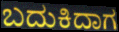
ಬದುಕಿದಾಗ